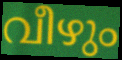
വീഴും